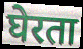
घेरता